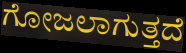
ಗೋಜಲಾಗುತ್ತದೆ